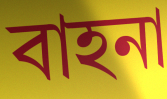
বাহনা